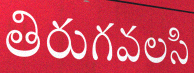
తిరుగవలసి